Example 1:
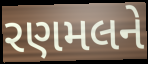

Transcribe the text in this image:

રણમલને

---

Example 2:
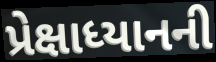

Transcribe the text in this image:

પ્રેક્ષાધ્યાનની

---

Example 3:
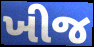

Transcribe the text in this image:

ખીજ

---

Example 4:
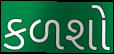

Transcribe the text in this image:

કળશો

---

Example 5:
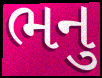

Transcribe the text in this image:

ભનુ